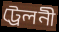
ট্রেলনী